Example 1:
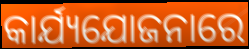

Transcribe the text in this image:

କାର୍ଯ୍ୟଯୋଜନାରେ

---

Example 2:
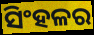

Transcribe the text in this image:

ସିଂହଳର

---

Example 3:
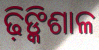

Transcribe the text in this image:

ଢ଼ିଙ୍କିଶାଳ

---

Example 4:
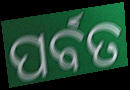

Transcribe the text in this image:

ପର୍ବତ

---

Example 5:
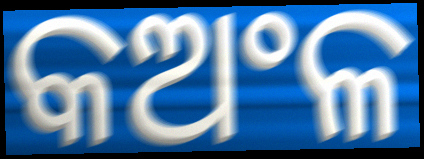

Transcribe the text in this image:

କଅଂଳ